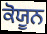
ਕੋਯੂਨ